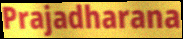
Prajadharana